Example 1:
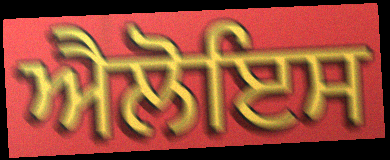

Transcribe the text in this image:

ਐਲੋਇਸ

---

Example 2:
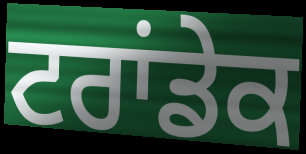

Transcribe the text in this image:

ਟਰਾਂਡੇਕ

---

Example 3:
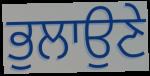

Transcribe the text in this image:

ਭੁਲਾਉਣੇ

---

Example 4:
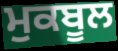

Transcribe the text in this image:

ਮੁਕਬੂਲ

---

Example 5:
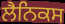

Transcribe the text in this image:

ਲੈਨਿਕਸ